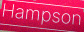
Hampson